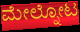
ಮೇಲ್ನೋಟ